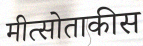
मीत्सोताकीस